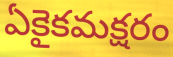
ఏకైకమక్షరం